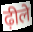
ढ़ीले